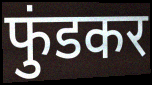
फुंडकर